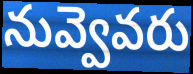
నువ్వెవరు